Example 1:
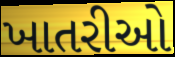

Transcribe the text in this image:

ખાતરીઓ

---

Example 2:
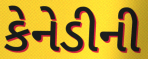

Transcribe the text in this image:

કેનેડીની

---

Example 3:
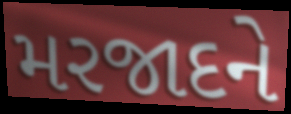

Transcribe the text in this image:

મરજાદને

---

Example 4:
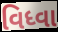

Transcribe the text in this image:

વિધ્વા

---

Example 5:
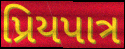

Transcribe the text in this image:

પ્રિયપાત્ર